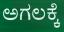
ಅಗಲಕ್ಕೆ